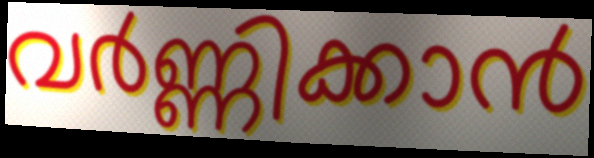
വർണ്ണിക്കാൻ